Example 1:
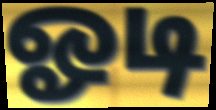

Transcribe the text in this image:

ஓடி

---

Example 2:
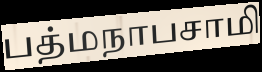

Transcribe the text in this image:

பத்மநாபசாமி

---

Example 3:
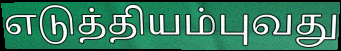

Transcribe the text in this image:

எடுத்தியம்புவது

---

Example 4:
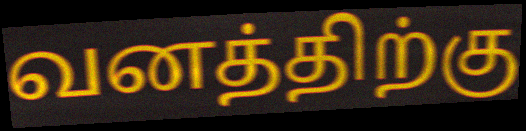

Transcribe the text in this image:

வனத்திற்கு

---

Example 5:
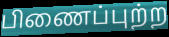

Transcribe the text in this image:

பிணைப்புற்ற